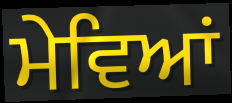
ਮੇਵਿਆਂ